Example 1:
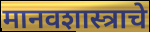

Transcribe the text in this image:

मानवशास्त्राचे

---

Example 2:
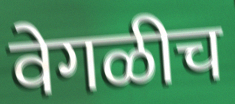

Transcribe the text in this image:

वेगळीच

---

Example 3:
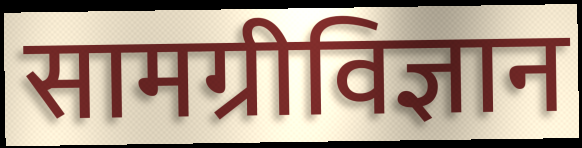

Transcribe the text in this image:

सामग्रीविज्ञान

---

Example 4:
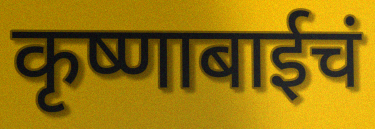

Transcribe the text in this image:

कृष्णाबाईचं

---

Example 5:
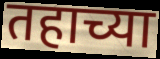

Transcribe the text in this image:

तहाच्या